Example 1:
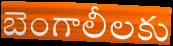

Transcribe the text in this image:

బెంగాలీలకు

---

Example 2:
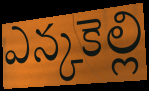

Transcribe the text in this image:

ఎన్కకెల్లి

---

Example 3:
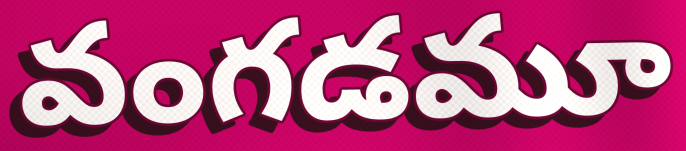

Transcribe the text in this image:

వంగడమూ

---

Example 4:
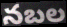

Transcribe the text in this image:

నబల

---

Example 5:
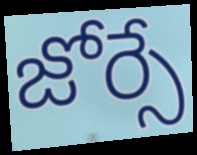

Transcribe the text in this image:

జోర్సే